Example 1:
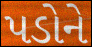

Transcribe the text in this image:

પડોને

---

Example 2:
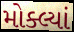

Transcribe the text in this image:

મોક્લ્યાં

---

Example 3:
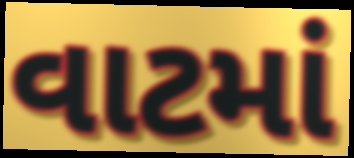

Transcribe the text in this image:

વાટમાં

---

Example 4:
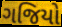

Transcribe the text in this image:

ગજિયો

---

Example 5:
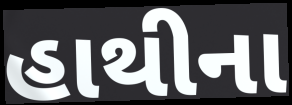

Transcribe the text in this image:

હાથીના